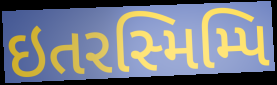
ઇતરસ્મિમ્પિ